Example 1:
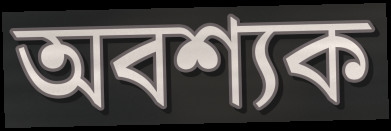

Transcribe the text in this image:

অবশ্যক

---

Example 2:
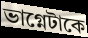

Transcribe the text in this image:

ভাগ্নেটাকে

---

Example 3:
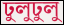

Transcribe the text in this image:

ঢুলুঢুলু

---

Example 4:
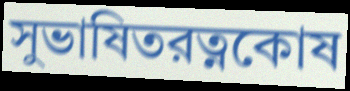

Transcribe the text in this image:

সুভাষিতরত্নকোষ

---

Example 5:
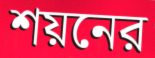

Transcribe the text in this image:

শয়নের